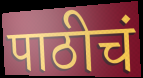
पाठीचं